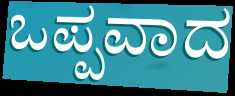
ಒಪ್ಪವಾದ